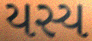
યસ્ય